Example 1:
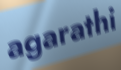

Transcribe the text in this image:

agarathi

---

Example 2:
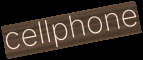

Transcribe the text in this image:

cellphone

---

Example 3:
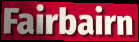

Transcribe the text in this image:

Fairbairn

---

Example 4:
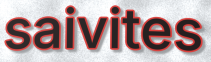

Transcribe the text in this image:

saivites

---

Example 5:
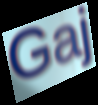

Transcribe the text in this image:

Gaj